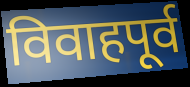
विवाहपूर्व